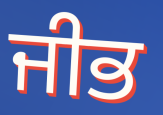
ਜੀਭ